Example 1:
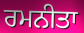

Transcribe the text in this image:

ਰਮਨੀਤਾ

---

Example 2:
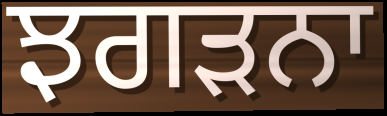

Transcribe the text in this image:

ਝਗੜਨਾ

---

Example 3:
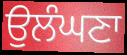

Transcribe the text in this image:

ਉਲੰਘਣਾ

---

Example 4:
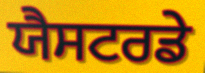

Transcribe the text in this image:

ਯੈਸਟਰਡੇ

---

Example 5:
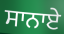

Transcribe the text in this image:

ਸਾਨਾਏ